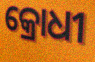
କ୍ରୋଧୀ